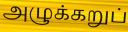
அழுக்கறுப்